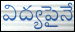
విద్యపైనే